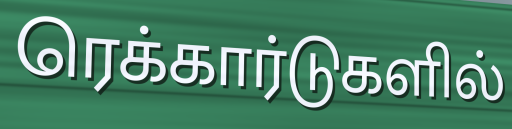
ரெக்கார்டுகளில்